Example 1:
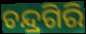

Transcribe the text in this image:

ଚନ୍ଦ୍ରଗିରି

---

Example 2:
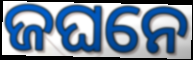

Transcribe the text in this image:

ଜଘନେ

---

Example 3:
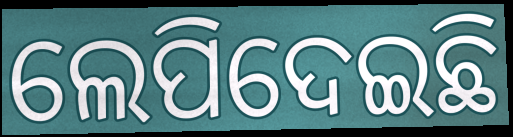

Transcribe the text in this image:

ଲେପିଦେଇଛି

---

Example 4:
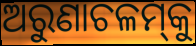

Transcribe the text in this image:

ଅରୁଣାଚଳମ୍‌କୁ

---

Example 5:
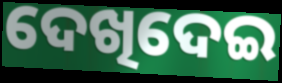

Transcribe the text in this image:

ଦେଖିଦେଇ